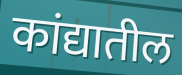
कांद्यातील